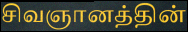
சிவஞானத்தின்